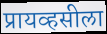
प्रायव्हसीला